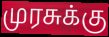
முரசுக்கு